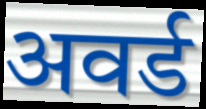
अवर्ड